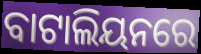
ବାଟାଲିୟନରେ